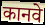
कानवे